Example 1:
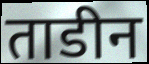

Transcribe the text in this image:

ताडीन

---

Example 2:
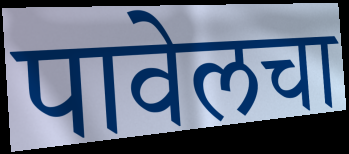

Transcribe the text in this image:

पावेलचा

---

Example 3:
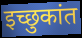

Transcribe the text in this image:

इच्छुकांत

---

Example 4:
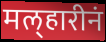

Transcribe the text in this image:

मल्हारीनं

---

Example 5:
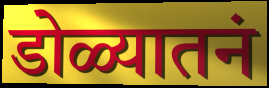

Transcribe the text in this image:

डोळ्यातनं